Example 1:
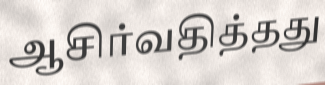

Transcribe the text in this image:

ஆசிர்வதித்தது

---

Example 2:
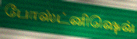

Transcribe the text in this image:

போஸ்ட்னிஷெவ்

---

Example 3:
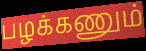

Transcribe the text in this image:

பழக்கணும்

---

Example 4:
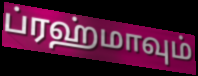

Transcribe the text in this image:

ப்ரஹ்மாவும்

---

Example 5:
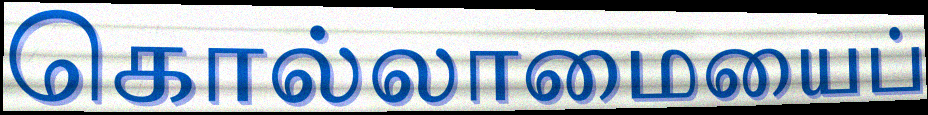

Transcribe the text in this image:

கொல்லாமையைப்